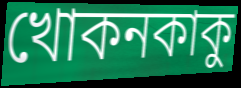
খোকনকাকু